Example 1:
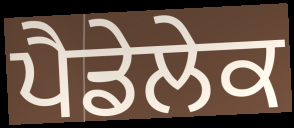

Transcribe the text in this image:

ਪੈਡੇਲੇਕ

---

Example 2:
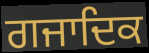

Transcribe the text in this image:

ਗਜਾਦਿਕ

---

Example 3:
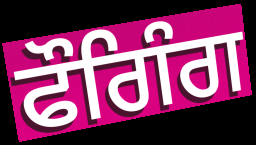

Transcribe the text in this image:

ਫੌਗਿੰਗ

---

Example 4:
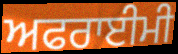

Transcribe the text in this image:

ਅਫਰਾਈਮੀ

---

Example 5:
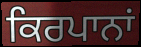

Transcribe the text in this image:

ਕਿਰਪਾਨਾਂ